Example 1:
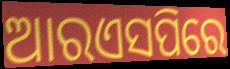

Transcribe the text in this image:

ଆରଏସପିରେ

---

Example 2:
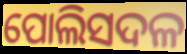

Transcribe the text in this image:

ପୋଲିସଦଳ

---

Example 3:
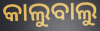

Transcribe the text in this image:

କାଲୁବାଲୁ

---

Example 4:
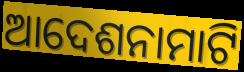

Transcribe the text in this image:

ଆଦେଶନାମାଟି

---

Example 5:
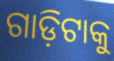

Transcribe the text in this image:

ଗାଡ଼ିଟାକୁ